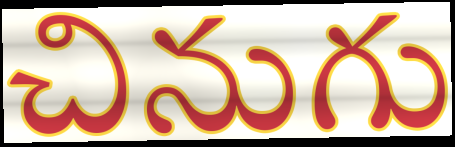
చినుగు